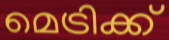
മെട്രിക്ക്